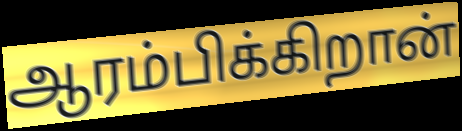
ஆரம்பிக்கிறான்